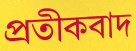
প্ৰতীকবাদ